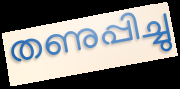
തണുപ്പിച്ചു